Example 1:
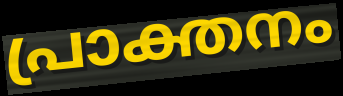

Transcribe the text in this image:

പ്രാക്തനം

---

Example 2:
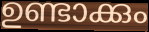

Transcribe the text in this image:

ഉണ്ടാക്കും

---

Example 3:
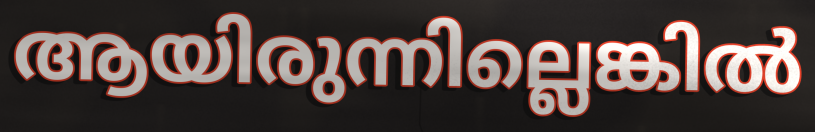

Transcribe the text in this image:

ആയിരുന്നില്ലെങ്കിൽ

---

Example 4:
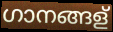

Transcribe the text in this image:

ഗാനങ്ങള്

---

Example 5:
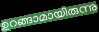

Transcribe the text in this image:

ഉറങ്ങാമായിരുന്നു